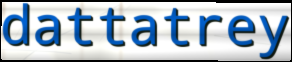
dattatrey